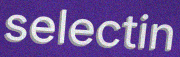
selectin